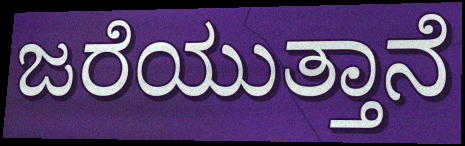
ಜರೆಯುತ್ತಾನೆ